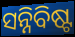
ସନ୍ନିବିଷ୍ଟ